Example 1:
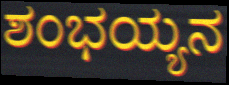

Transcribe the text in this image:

ಶಂಭಯ್ಯನ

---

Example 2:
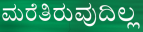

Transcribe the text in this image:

ಮರೆತಿರುವುದಿಲ್ಲ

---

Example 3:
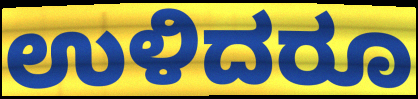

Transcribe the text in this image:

ಉಳಿದರೂ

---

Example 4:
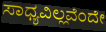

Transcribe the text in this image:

ಸಾಧ್ಯವಿಲ್ಲವೆಂದೇ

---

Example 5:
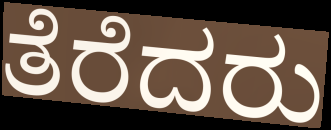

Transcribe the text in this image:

ತೆರೆದರು